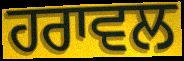
ਹਰਾਵਲ